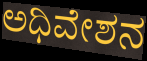
ಅಧಿವೇಶನ